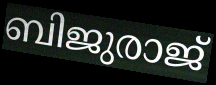
ബിജുരാജ്